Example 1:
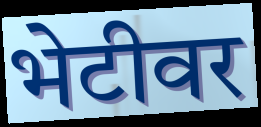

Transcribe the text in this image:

भेटीवर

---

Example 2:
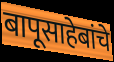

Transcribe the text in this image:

बापूसाहेबांचे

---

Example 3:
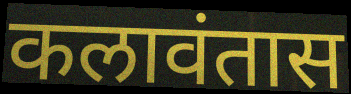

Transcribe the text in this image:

कलावंतास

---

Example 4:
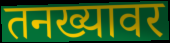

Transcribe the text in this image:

तनख्यावर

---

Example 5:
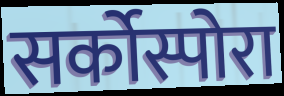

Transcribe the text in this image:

सर्कोस्पोरा